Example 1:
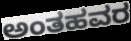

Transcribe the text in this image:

ಅಂತಹವರ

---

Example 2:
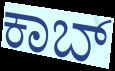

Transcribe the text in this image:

ಕಾಬ್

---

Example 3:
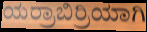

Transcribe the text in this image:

ಯರ್ರಾಬಿರ್ರಿಯಾಗಿ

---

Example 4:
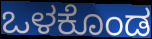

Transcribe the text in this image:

ಒಳಕೊಂಡ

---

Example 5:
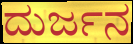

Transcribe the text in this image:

ದುರ್ಜನ